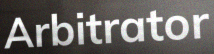
Arbitrator